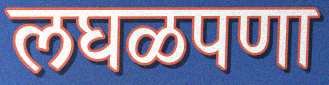
लघळपणा